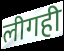
लीगही